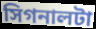
সিগনালটা